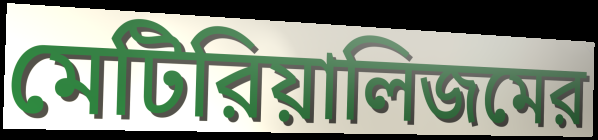
মেটিরিয়ালিজমের